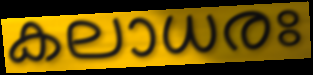
കലാധരഃ